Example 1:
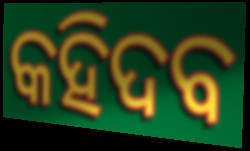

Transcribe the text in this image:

କହିଦବ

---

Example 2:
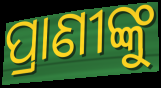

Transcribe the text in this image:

ପ୍ରାଣୀଙ୍କୁ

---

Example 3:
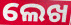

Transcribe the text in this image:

ଲେଖ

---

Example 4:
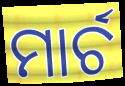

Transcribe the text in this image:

ମାର୍ଚ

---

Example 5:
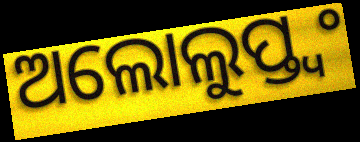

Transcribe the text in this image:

ଅଲୋଲୁପ୍ତ୍ୱଂ